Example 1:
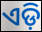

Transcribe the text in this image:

ଏଡ଼ି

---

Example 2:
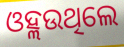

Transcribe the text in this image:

ଓହ୍ଲଉଥିଲେ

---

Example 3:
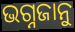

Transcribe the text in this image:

ଭଗ୍ନଜାନୁ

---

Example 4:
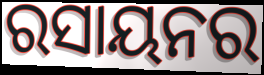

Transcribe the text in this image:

ରସାୟନର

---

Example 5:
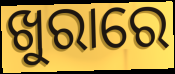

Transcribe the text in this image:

ଖୁରାରେ